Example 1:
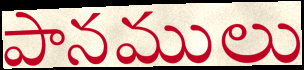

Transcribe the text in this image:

పానములు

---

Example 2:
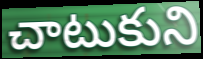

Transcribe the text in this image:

చాటుకుని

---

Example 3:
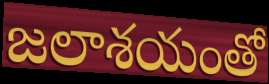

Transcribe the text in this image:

జలాశయంతో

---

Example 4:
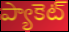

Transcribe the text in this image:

ప్యాకెట్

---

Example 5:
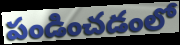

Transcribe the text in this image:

పండించడంలో